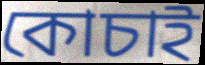
কোচাই